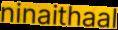
ninaithaal